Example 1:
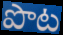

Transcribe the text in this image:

పొట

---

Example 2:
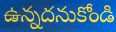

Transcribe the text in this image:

ఉన్నదనుకోండి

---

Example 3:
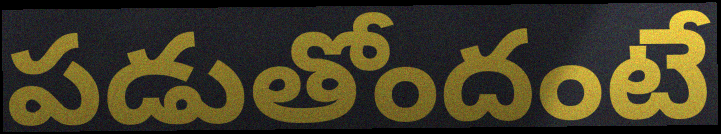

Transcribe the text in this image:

పడుతోందంటే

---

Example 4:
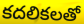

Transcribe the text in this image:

కదలికలతో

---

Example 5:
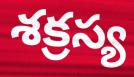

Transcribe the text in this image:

శక్రస్య